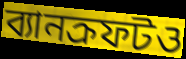
ব্যানক্রফটও